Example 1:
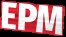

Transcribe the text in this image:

EPM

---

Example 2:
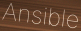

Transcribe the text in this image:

Ansible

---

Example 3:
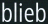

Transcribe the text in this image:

blieb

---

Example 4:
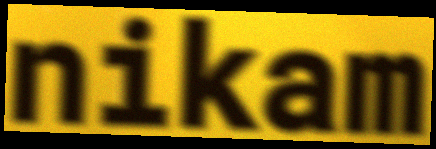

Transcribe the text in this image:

nikam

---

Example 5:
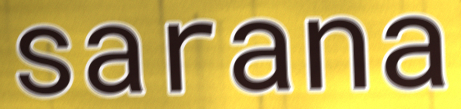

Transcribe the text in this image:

sarana